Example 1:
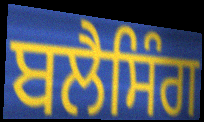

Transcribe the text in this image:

ਬਲੈਸਿੰਗ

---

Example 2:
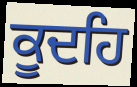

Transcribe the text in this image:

ਕੂਦਹਿ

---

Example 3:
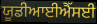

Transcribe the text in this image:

ਯੂਡੀਆਈਐੱਸਈ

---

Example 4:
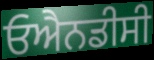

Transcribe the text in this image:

ਓਐਨਡੀਸੀ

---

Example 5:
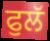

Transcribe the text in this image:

ਫੁਲੱ